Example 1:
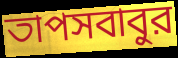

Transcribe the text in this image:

তাপসবাবুর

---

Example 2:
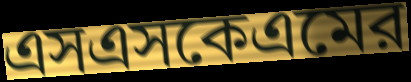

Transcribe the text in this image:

এসএসকেএমের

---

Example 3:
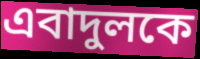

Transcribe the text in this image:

এবাদুলকে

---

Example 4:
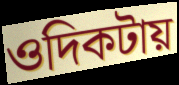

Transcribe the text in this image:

ওদিকটায়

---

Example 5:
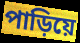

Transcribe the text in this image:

পাড়িয়ে